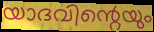
യാദവിന്റെയും